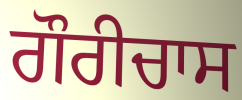
ਗੌਰੀਚਾਸ